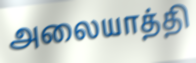
அலையாத்தி